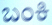
ಬಂಕಿ